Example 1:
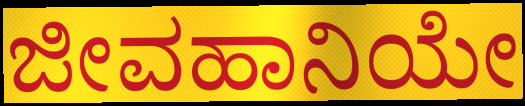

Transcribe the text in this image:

ಜೀವಹಾನಿಯೇ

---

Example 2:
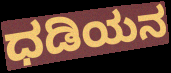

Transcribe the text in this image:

ಧಡಿಯನ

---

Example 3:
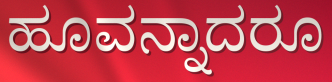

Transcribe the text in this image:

ಹೂವನ್ನಾದರೂ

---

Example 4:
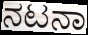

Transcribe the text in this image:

ನಟನಾ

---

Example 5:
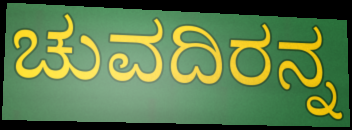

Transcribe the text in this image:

ಚುವದಿರನ್ನ